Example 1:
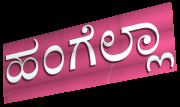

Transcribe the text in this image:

ಹಂಗೆಲ್ಲಾ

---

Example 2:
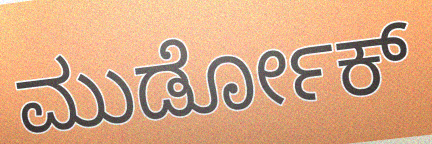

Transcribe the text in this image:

ಮುರ್ಡೋಕ್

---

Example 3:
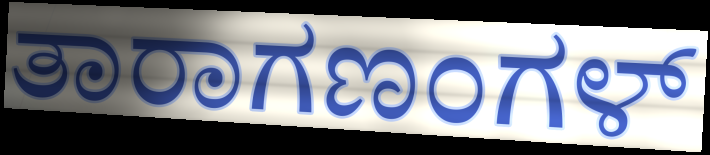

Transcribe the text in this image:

ತಾರಾಗಣಂಗಳ್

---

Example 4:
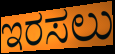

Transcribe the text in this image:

ಇರಸಲು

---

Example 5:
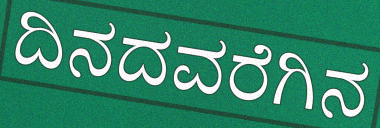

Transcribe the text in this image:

ದಿನದವರೆಗಿನ